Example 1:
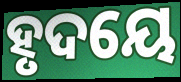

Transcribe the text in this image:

ହୃଦୟେ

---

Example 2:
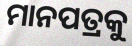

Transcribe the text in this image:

ମାନପତ୍ରକୁ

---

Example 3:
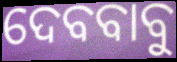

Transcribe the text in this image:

ଦେବବାବୁ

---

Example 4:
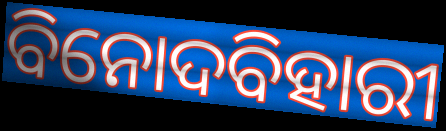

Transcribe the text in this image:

ବିନୋଦବିହାରୀ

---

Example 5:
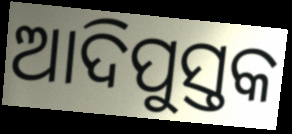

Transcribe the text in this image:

ଆଦିପୁସ୍ତକ